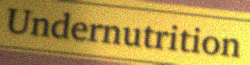
Undernutrition